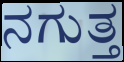
ನಗುತ್ತ